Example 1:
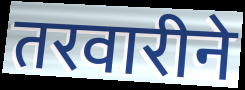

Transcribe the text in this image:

तरवारीने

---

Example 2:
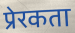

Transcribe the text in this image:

प्रेरकता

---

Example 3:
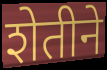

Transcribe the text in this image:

शेतीने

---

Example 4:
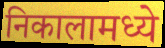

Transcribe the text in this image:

निकालामध्ये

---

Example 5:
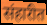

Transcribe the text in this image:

संहारीत